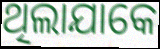
ଥିଲାଯାକେ